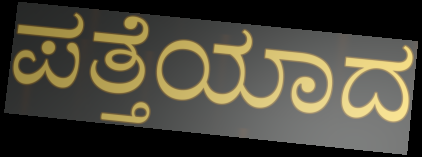
ಪತ್ತೆಯಾದ